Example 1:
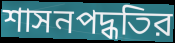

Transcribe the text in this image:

শাসনপদ্ধতির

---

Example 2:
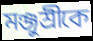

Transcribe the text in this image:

মঞ্জুশ্রীকে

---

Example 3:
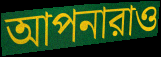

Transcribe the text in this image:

আপনারাও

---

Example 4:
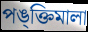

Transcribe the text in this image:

পঙ্‌ক্তিমালা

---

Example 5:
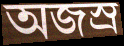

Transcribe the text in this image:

অজস্র